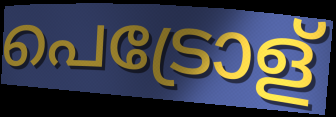
പെട്രോള്